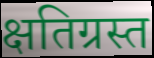
क्षतिग्रस्त